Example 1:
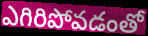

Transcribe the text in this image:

ఎగిరిపోవడంతో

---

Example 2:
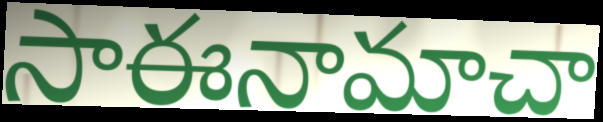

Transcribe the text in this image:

సాఈనామాచా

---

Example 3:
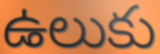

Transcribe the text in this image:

ఉలుకు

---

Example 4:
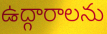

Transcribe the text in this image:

ఉద్గారాలను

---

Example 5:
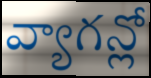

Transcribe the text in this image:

వ్యాగన్లో